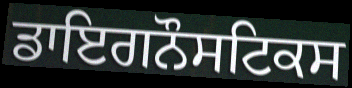
ਡਾਇਗਨੌਸਟਿਕਸ